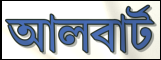
আলবার্ট